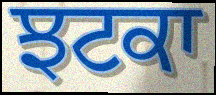
ਝਟਕਾ